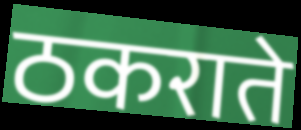
ठकराते